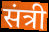
संत्री